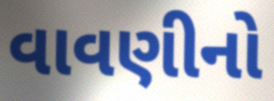
વાવણીનો